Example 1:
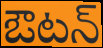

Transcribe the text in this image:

ఔటన్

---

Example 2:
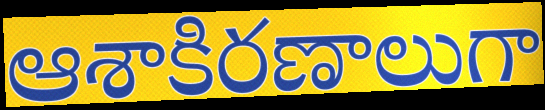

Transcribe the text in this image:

ఆశాకిరణాలుగా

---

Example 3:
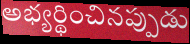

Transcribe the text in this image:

అభ్యర్థించినప్పుడు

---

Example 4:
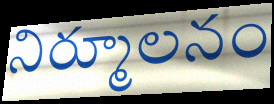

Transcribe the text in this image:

నిర్మూలనం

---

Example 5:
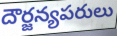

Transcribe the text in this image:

దౌర్జన్యపరులు